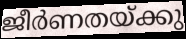
ജീർണതയ്ക്കു